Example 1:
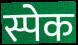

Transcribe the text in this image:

स्पेक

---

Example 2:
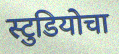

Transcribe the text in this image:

स्टुडियोचा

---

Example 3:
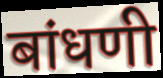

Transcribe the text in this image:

बांधणी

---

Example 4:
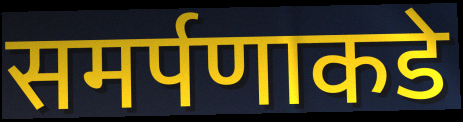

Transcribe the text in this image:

समर्पणाकडे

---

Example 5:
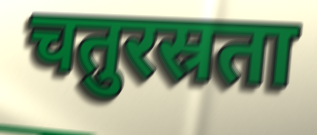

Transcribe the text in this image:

चतुरस्रता